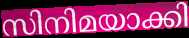
സിനിമയാക്കി